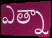
ఎత్నా